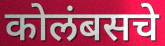
कोलंबसचे